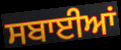
ਸਬਾਈਆਂ